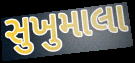
સુખુમાલા